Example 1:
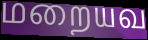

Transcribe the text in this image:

மறையவ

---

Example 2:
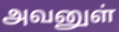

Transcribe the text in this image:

அவனுள்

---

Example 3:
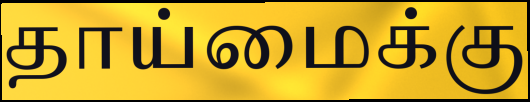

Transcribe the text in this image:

தாய்மைக்கு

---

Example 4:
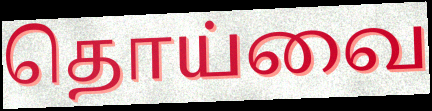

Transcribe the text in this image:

தொய்வை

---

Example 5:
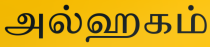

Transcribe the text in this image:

அல்ஹகம்